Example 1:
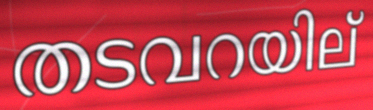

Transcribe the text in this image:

തടവറയില്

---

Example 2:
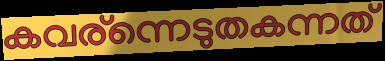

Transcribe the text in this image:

കവര്ന്നെടുതകന്നത്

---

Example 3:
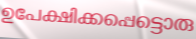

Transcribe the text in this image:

ഉപേക്ഷിക്കപ്പെട്ടൊരു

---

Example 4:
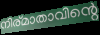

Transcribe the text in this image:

നിര്മാതാവിന്റെ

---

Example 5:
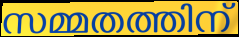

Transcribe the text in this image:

സമ്മതത്തിന്